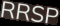
RRSP